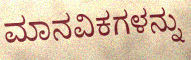
ಮಾನವಿಕಗಳನ್ನು